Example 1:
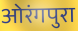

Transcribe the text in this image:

ओरंगपुरा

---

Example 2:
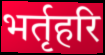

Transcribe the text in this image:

भर्तृहरि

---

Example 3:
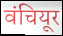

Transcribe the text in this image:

वंचियूर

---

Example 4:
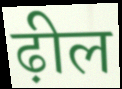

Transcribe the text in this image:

ढ़ील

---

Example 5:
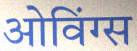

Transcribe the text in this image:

ओविंग्स